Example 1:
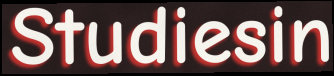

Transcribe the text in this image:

Studiesin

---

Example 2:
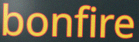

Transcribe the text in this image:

bonfire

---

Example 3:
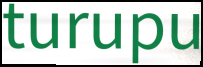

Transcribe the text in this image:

turupu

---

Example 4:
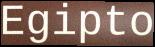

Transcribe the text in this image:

Egipto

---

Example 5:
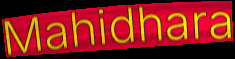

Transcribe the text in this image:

Mahidhara